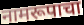
नामरूपाचा